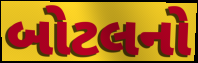
બોટલનો